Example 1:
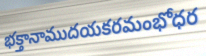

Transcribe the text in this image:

భక్తానాముదయకరమంభోధర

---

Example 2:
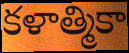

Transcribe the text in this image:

కళాత్మికా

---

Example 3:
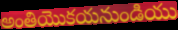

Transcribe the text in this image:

అంతియొకయనుండియు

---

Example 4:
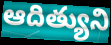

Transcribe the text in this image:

ఆదిత్యుని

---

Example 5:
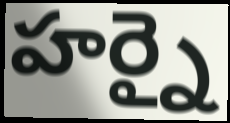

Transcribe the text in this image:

హర్నై